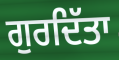
ਗੁਰਦਿੱਤਾ